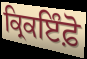
ਕ੍ਰਿਕਇੰਫ਼ੋ